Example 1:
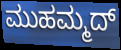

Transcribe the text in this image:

ಮುಹಮ್ಮದ್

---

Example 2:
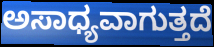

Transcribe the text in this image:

ಅಸಾಧ್ಯವಾಗುತ್ತದೆ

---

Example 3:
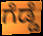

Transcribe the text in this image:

ಗೆಡ್ಡೆ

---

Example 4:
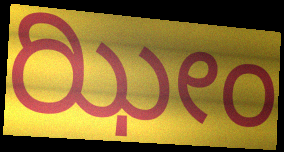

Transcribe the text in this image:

ಝೀಂ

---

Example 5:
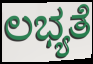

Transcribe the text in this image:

ಲಭ್ಯತೆ